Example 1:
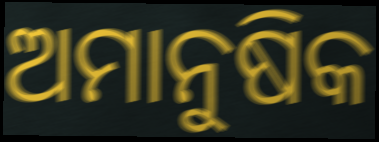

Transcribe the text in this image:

ଅମାନୁଷିକ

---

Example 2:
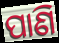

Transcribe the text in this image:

ପାଣି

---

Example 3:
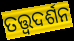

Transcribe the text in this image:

ତତ୍ତ୍ଵଦର୍ଶନ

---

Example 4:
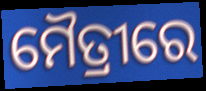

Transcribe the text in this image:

ମୈତ୍ରୀରେ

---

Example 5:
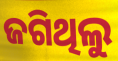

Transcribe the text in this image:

ଜଗିଥିଲୁ